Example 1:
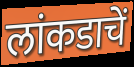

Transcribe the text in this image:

लांकडाचें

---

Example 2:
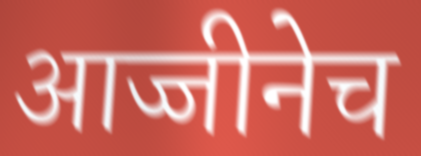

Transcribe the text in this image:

आज्जीनेच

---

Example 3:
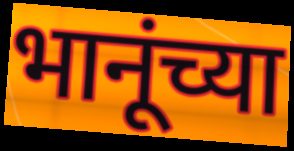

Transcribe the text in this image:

भानूंच्या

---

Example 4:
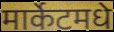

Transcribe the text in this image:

मार्केटमधे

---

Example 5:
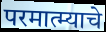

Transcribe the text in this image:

परमात्म्याचे